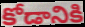
కోడానికి